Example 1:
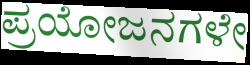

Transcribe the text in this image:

ಪ್ರಯೋಜನಗಳೇ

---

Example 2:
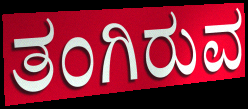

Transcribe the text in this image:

ತಂಗಿರುವ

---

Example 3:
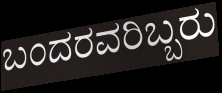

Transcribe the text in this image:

ಬಂದರವರಿಬ್ಬರು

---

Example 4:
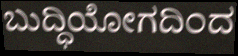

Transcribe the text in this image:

ಬುದ್ಧಿಯೋಗದಿಂದ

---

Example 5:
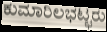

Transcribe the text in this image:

ಕುಮಾರಿಲಭಟ್ಟರು